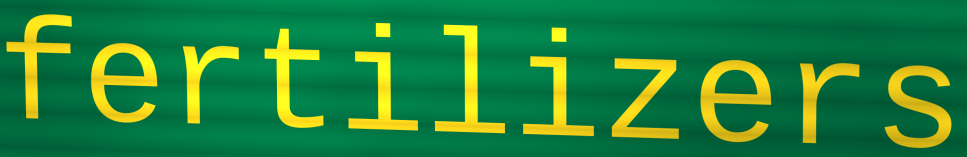
fertilizers